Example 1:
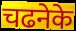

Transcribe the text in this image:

चढनेके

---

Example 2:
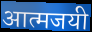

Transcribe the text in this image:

आत्मजयी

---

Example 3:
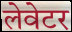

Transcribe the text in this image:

लेवेटर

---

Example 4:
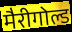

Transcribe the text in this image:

मैरीगोल्ड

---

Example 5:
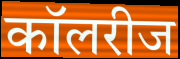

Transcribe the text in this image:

कॉलरीज